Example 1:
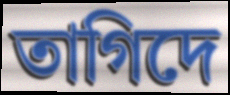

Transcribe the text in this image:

তাগিদে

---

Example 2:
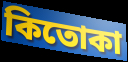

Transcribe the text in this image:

কিতোকা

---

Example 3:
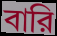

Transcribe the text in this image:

বারি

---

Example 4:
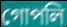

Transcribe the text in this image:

গোপলি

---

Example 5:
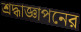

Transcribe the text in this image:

শ্রদ্ধাজ্ঞাপনের